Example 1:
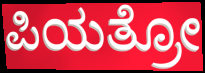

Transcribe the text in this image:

ಪಿಯತ್ರೋ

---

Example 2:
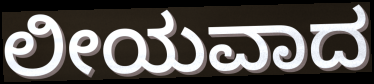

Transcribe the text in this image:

ಲೀಯವಾದ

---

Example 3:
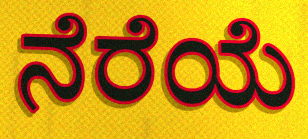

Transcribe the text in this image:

ನೆರೆಯೆ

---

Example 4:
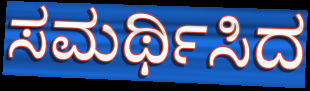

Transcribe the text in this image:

ಸಮರ್ಥಿಸಿದ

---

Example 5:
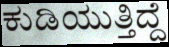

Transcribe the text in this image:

ಕುಡಿಯುತ್ತಿದ್ದೆ